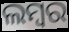
ଲମ୍ବର